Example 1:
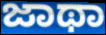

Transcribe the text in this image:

ಜಾಥಾ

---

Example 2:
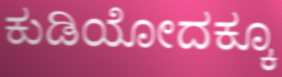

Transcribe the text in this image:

ಕುಡಿಯೋದಕ್ಕೂ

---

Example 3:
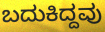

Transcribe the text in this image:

ಬದುಕಿದ್ದವು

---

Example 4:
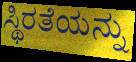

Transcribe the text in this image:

ಸ್ಥಿರತೆಯನ್ನು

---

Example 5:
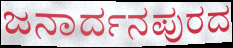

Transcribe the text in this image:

ಜನಾರ್ದನಪುರದ